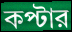
কপ্টার